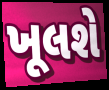
ખૂલશે